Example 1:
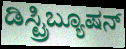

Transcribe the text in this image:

ಡಿಸ್ಟ್ರಿಬ್ಯೂಷನ್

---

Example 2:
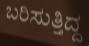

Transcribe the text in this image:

ಬರಿಸುತ್ತಿದ್ದ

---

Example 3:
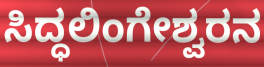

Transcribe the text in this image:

ಸಿದ್ಧಲಿಂಗೇಶ್ವರನ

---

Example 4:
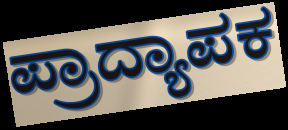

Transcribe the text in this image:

ಪ್ರಾದ್ಯಾಪಕ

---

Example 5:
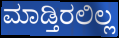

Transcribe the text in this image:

ಮಾಡ್ತಿರಲಿಲ್ಲ